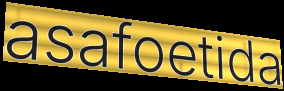
asafoetida